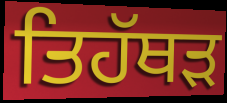
ਤਿਹੱਥੜ